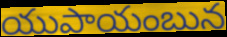
యుపాయంబున